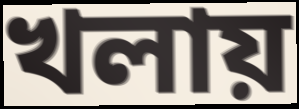
খলায়